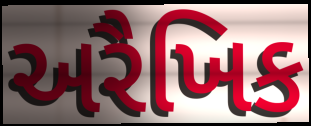
અરૈખિક